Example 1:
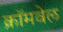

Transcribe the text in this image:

क्रॉमवेल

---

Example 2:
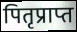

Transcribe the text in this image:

पितृप्राप्त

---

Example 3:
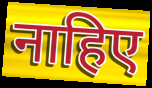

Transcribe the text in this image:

नाहिए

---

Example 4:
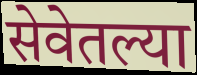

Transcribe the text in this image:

सेवेतल्या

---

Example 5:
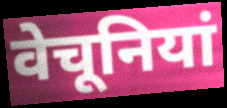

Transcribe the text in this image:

वेचूनियां